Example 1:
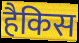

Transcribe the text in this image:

हैकिस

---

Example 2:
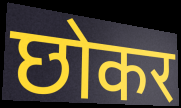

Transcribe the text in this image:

छोकर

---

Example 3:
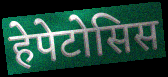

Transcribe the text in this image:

हेपेटोसिस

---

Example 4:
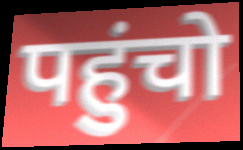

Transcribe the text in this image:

पहुंचो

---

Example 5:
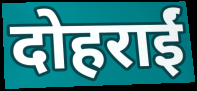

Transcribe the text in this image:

दोहराईं